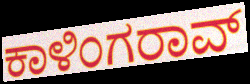
ಕಾಳಿಂಗರಾವ್